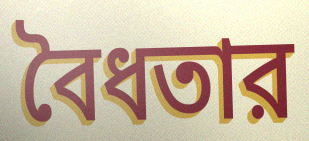
বৈধতার